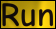
Run